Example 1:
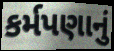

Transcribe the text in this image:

કર્મપણાનું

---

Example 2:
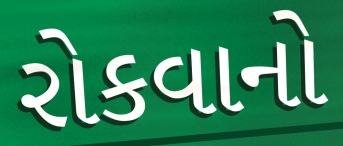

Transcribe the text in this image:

રોકવાનો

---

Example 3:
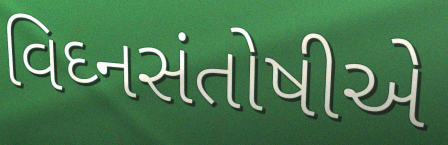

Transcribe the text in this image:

વિઘ્નસંતોષીએ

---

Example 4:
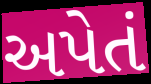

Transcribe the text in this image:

અપેતં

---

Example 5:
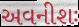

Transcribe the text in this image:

અવનીશઃ